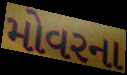
મોવરના